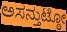
ಅಸನ್ತುಟ್ಠೋ